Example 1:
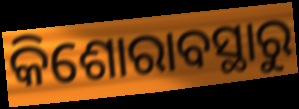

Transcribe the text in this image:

କିଶୋରାବସ୍ଥାରୁ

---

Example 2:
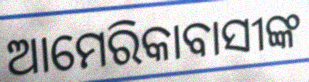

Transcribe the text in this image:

ଆମେରିକାବାସୀଙ୍କ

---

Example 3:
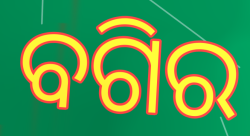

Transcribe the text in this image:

ବଗିର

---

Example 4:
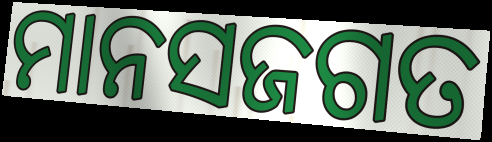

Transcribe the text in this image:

ମାନସଜଗତ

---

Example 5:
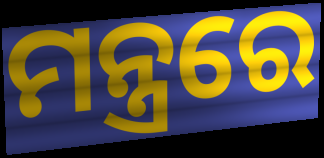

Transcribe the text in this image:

ମନ୍ତ୍ରରେ